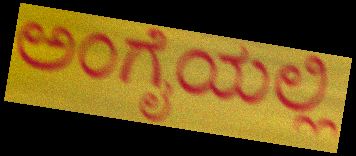
ಅಂಗೈಯಲ್ಲಿ